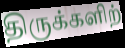
திருக்களிற்